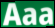
Aaa